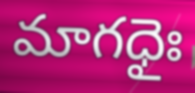
మాగధైః